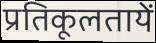
प्रतिकूलतायें